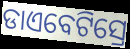
ଡାଏବେଟିସ୍ରେ